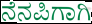
ನೆನಪಿಗಾಗಿ